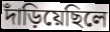
দাঁড়িয়েছিলে